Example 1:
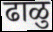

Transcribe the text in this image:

ढाळु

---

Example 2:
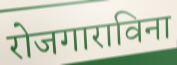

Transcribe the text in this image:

रोजगाराविना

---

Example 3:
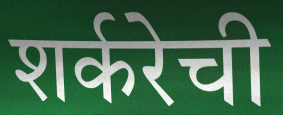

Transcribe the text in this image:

शर्करेची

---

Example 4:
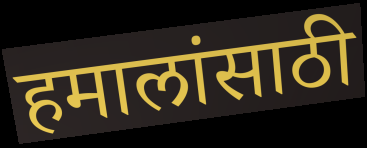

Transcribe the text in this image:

हमालांसाठी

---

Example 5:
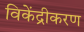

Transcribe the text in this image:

विकेंद्रीकरण